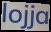
lojja